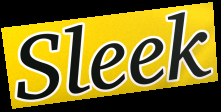
Sleek